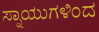
ಸ್ನಾಯುಗಳಿಂದ